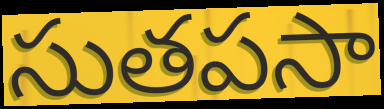
సుతపసా